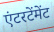
एंटरटेंमेंट